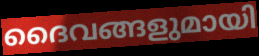
ദൈവങ്ങളുമായി